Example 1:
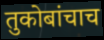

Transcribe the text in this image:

तुकोबांचाच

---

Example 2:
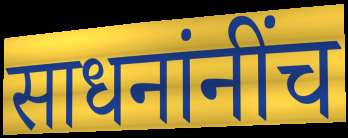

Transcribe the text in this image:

साधनांनींच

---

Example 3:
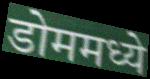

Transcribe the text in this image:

डोममध्ये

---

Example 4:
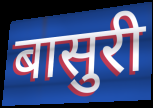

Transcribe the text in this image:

बासुरी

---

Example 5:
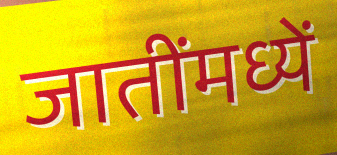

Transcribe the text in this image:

जातींमध्यें